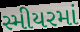
સ્મીયરમાં